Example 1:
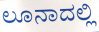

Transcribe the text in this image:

ಲೂನಾದಲ್ಲಿ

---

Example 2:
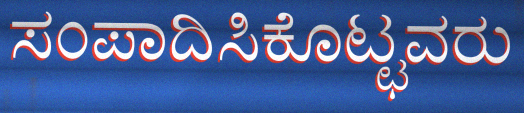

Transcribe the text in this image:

ಸಂಪಾದಿಸಿಕೊಟ್ಟವರು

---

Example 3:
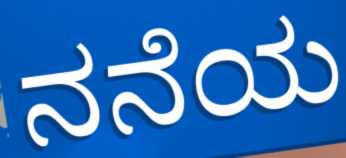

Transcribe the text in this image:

ನನೆಯ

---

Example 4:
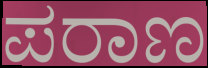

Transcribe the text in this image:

ಪರಾಣ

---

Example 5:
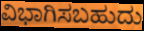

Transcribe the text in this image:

ವಿಭಾಗಿಸಬಹುದು